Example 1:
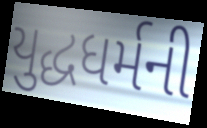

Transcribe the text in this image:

યુદ્ધધર્મની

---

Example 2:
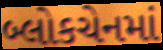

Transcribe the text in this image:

બ્લોકચેનમાં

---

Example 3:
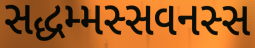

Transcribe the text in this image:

સદ્ધમ્મસ્સવનસ્સ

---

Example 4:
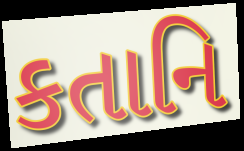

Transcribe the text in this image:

કતાનિ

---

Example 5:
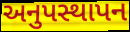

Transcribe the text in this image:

અનુપસ્થાપન